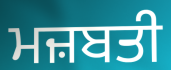
ਮਜ਼ਬਤੀ